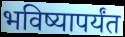
भविष्यापर्यंत